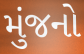
મુંજનો